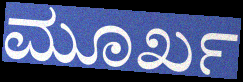
ಮೂರ್ಖ